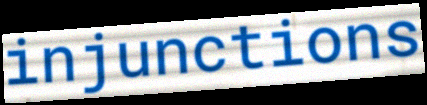
injunctions